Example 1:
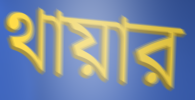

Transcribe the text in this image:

থায়ার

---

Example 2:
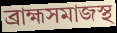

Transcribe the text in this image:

ব্রাহ্মসমাজস্থ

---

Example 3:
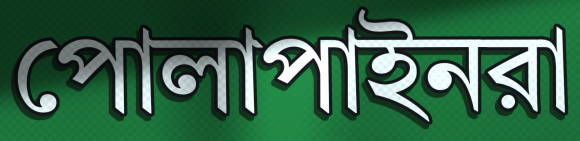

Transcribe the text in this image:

পোলাপাইনরা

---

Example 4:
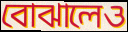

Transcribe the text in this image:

বোঝালেও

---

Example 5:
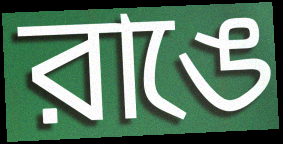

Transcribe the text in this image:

রাঙে